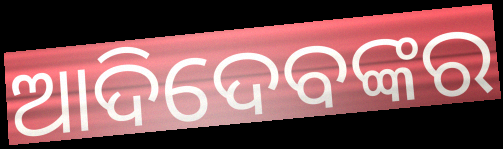
ଆଦିଦେବଙ୍କର